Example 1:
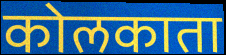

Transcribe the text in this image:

कोलकाता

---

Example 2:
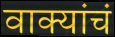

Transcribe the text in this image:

वाक्यांचं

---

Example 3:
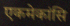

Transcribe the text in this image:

एकमेकांसि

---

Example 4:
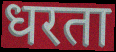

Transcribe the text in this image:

धरता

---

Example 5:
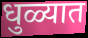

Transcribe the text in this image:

धुळ्यात